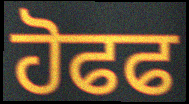
ਹੋਫਫ